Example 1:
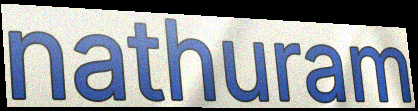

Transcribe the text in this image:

nathuram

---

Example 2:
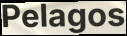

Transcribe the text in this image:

Pelagos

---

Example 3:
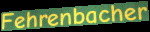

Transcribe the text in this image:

Fehrenbacher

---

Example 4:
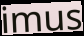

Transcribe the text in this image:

imus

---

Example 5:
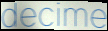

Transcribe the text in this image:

decime